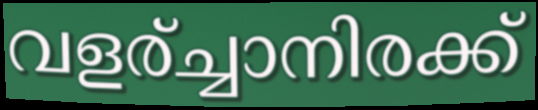
വളര്ച്ചാനിരക്ക്